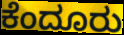
ಕೆಂದೂರು